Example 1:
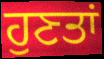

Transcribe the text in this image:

ਹੁਣਤਾਂ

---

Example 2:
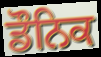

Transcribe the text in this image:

ਡੌਨਿਕ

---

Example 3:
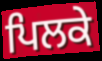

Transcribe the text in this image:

ਪਿਲਕੇ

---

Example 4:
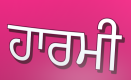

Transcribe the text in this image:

ਹਾਰਮੀ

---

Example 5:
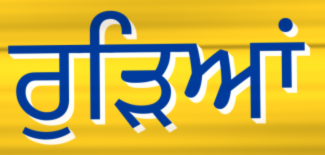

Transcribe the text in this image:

ਰੁੜਿਆਂ